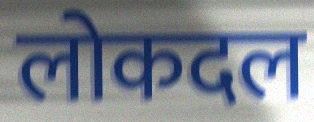
लोकदल